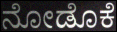
ನೋಡೊಕೆ